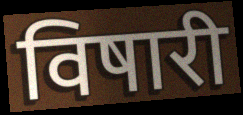
विषारी